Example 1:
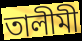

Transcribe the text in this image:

তালীমী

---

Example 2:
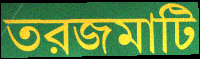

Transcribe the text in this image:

তরজমাটি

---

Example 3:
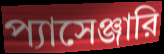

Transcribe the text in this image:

প্যাসেঞ্জারি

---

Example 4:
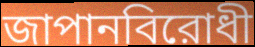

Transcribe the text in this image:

জাপানবিরোধী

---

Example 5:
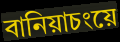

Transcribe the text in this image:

বানিয়াচংয়ে